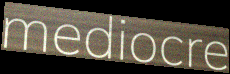
mediocre